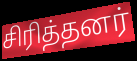
சிரித்தனர்